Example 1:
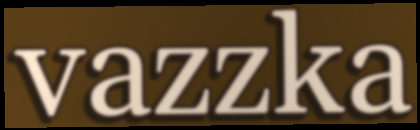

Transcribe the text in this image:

vazzka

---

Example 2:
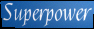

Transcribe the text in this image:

Superpower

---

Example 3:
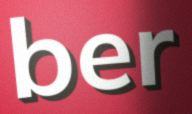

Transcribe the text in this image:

ber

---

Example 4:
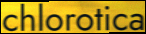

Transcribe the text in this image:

chlorotica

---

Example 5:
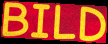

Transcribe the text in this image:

BILD